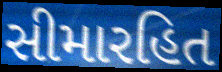
સીમારહિત